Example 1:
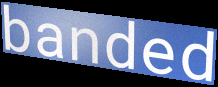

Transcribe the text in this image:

banded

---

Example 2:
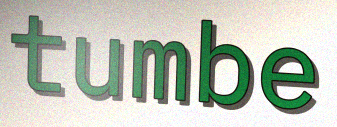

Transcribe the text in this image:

tumbe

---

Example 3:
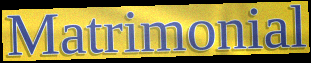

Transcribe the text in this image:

Matrimonial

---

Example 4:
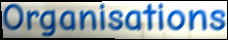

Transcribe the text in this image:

Organisations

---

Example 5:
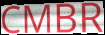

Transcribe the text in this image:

CMBR